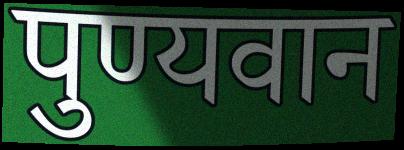
पुण्यवान